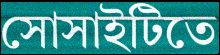
সোসাইটিতে